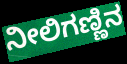
ನೀಲಿಗಣ್ಣಿನ